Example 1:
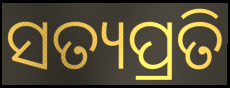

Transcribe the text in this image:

ସତ୍ୟପ୍ରତି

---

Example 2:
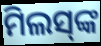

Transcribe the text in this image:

ମିଲସ୍‍ଙ୍କ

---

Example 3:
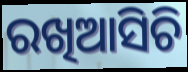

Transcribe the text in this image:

ରଖିଆସିଚି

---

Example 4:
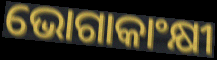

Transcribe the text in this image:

ଭୋଗାକାଂକ୍ଷୀ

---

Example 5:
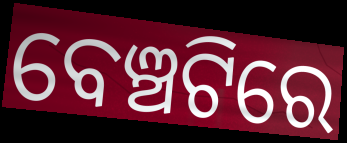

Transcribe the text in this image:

ବେଞ୍ଚଟିରେ